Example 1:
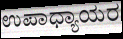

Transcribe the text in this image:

ಉಪಾಧ್ಯಾಯರ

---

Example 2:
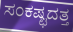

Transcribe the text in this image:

ಸಂಕಷ್ಟದತ್ತ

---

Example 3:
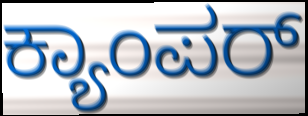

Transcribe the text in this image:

ಕ್ಯಾಂಪರ್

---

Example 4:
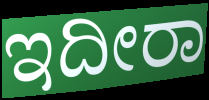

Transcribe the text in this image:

ಇದೀರಾ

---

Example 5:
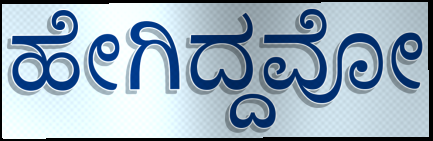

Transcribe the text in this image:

ಹೇಗಿದ್ದವೋ